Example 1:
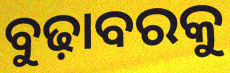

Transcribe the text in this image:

ବୁଢ଼ାବରକୁ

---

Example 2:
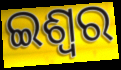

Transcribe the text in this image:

ଇଶ୍ବର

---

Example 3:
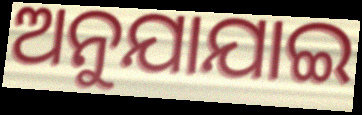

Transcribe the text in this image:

ଅନୁଯାଯାଇ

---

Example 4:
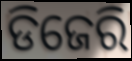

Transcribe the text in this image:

ଡିଜେରି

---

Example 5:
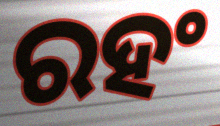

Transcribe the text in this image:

ରହଂ